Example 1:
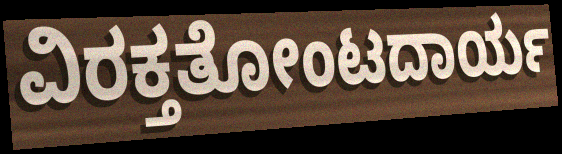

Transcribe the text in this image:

ವಿರಕ್ತತೋಂಟದಾರ್ಯ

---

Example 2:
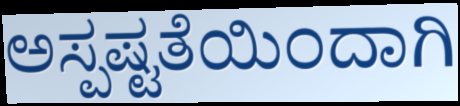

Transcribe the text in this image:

ಅಸ್ಪಷ್ಟತೆಯಿಂದಾಗಿ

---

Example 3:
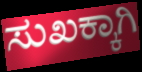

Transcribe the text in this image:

ಸುಖಕ್ಕಾಗಿ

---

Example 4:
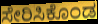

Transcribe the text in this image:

ಸೇರಿಸಿಕೊಂಡ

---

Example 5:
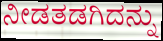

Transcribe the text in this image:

ನೀಡತಡಗಿದನ್ನು